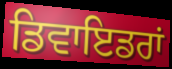
ਡਿਵਾਇਡਰਾਂ